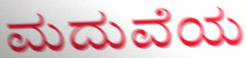
ಮದುವೆಯ